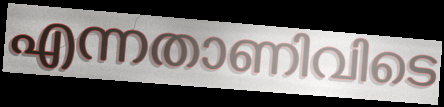
എന്നതാണിവിടെ